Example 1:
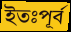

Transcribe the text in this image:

ইতঃপূর্ব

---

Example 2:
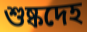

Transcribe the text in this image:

শুষ্কদেহ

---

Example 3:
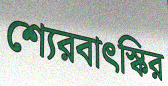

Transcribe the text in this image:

শ্যেরবাৎস্কির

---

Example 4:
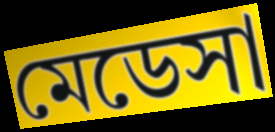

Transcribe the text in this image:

মেডেসা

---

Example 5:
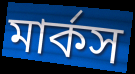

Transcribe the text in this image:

মার্কস